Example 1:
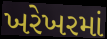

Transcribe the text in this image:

ખરેખરમાં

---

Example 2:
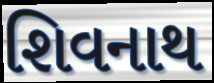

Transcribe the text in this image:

શિવનાથ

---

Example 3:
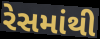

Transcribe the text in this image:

રેસમાંથી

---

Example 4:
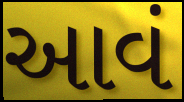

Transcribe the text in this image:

આવં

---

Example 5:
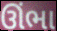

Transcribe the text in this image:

ઊંભા